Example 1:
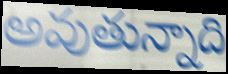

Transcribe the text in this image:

అవుతున్నాది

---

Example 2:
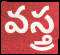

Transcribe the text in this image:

వస్త్ర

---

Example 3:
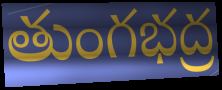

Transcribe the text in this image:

తుంగభద్ర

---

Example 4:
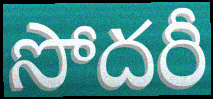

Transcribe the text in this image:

సోదరీ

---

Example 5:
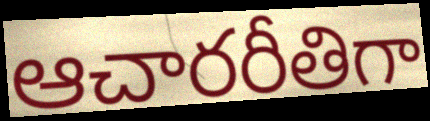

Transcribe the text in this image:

ఆచారరీతిగా